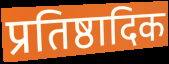
प्रतिष्ठादिक